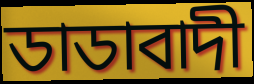
ডাডাবাদী